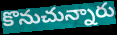
కొనుచున్నారు